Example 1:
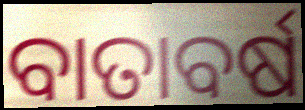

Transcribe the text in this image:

ବାତାବର୍ଷ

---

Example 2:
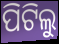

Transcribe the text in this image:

ପିଟିଲୁ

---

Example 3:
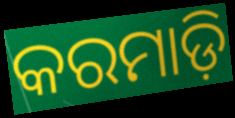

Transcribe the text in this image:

କରମାଡ଼ି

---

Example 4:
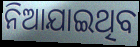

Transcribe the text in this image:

ନିଆଯାଇଥିବ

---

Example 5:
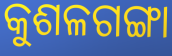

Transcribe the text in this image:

କୁଶଳଗଙ୍ଗା